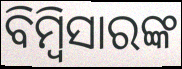
ବିମ୍ବିସାରଙ୍କ